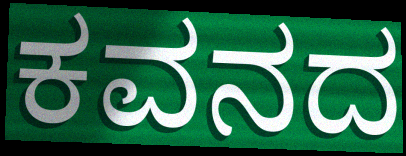
ಕವನದ